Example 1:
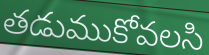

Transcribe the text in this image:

తడుముకోవలసి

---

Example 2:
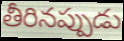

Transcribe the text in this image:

తీరినప్పుడు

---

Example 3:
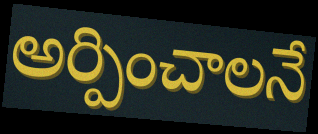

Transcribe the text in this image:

అర్పించాలనే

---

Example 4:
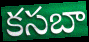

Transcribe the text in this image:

కసబా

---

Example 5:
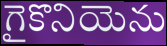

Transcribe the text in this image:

గైకొనియెను